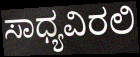
ಸಾಧ್ಯವಿರಲಿ